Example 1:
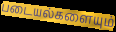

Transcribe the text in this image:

படையல்களையும்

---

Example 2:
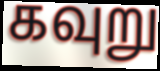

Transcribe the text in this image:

கவுறு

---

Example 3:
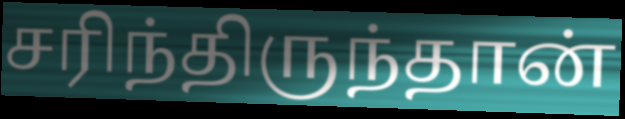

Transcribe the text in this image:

சரிந்திருந்தான்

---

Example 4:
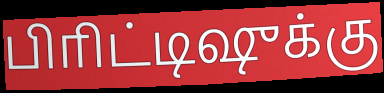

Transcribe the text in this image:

பிரிட்டிஷுக்கு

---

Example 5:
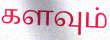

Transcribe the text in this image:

களவும்